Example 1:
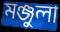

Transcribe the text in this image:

মঞ্জুলা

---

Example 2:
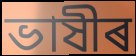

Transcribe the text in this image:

ভাষীৰ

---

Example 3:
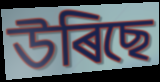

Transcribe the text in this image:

উৰিছে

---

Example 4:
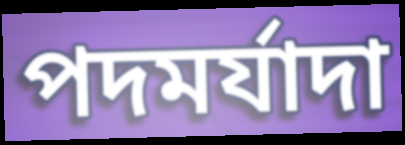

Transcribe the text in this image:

পদমৰ্যাদা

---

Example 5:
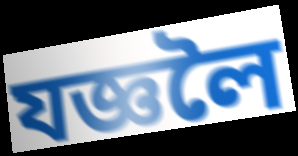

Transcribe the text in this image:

যজ্ঞলৈ